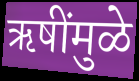
ऋषींमुळे